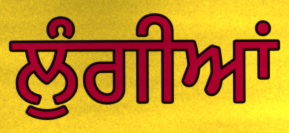
ਲੁੰਗੀਆਂ